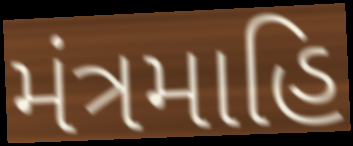
મંત્રમાહિ